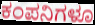
ಕಂಪನಿಗಳೂ